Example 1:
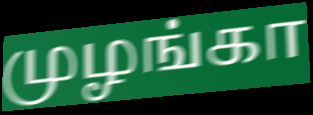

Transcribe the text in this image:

முழங்கா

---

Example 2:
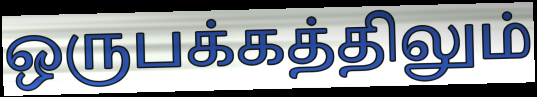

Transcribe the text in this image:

ஒருபக்கத்திலும்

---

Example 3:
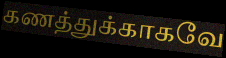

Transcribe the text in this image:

கணத்துக்காகவே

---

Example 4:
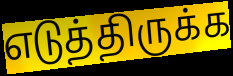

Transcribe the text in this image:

எடுத்திருக்க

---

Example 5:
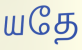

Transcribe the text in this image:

யதே